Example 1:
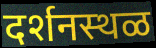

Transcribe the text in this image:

दर्शनस्थळ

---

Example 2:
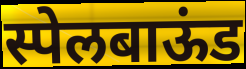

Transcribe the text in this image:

स्पेलबाऊंड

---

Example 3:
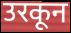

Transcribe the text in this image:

उरकून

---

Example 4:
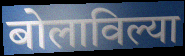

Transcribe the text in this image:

बोलाविल्या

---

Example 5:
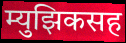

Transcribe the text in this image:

म्युझिकसह